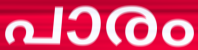
പാരം